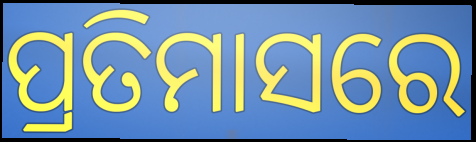
ପ୍ରତିମାସରେ